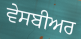
ਵੇਸਬੀਅਰ